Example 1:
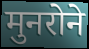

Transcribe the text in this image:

मुनरोने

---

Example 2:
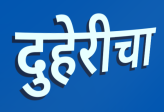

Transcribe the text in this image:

दुहेरीचा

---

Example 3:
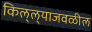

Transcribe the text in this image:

किल्ल्याजवळील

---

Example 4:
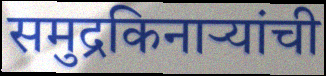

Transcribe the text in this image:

समुद्रकिनाऱ्यांची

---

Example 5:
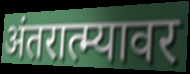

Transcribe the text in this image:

अंतरात्म्यावर